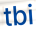
tbi